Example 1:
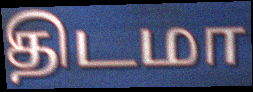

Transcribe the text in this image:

திடமா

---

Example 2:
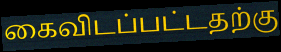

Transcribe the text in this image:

கைவிடப்பட்டதற்கு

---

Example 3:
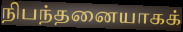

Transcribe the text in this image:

நிபந்தனையாகக்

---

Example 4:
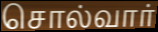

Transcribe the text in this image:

சொல்வார்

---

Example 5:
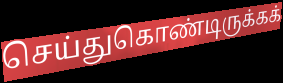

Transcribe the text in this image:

செய்துகொண்டிருக்கக்